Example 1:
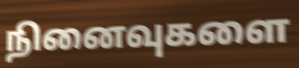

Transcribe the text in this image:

நினைவுகளை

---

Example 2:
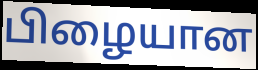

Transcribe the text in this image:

பிழையான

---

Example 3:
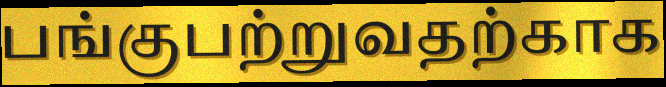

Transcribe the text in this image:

பங்குபற்றுவதற்காக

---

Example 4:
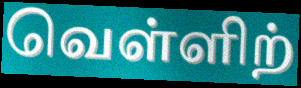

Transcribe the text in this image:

வெள்ளிற்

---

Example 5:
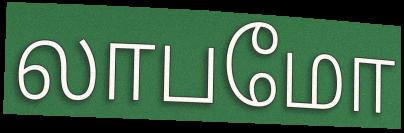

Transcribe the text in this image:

லாபமோ